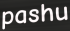
pashu